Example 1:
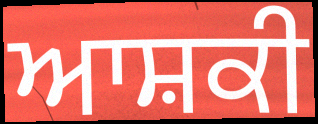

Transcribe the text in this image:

ਆਸ਼ਕੀ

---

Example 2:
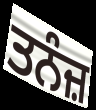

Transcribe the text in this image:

ਤਨੰਜ਼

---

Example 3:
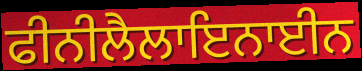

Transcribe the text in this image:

ਫੀਨੀਲੈਲਾਇਨਾਈਨ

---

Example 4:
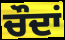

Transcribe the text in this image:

ਚੌਦਾਂ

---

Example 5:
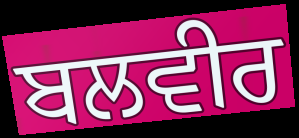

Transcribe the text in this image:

ਬਲਵੀਰ